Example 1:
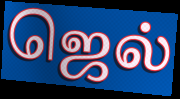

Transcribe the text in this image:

ஜெல்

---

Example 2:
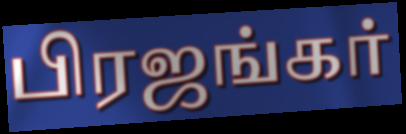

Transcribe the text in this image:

பிரஜங்கர்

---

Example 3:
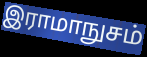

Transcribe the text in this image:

இராமாநுசம்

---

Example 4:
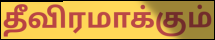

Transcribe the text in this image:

தீவிரமாக்கும்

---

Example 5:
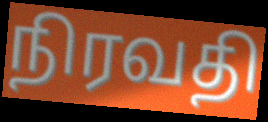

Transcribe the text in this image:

நிரவதி